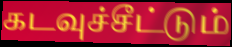
கடவுச்சீட்டும்